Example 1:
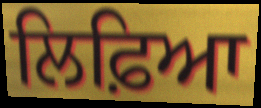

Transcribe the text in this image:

ਲਿਫ਼ਿਆ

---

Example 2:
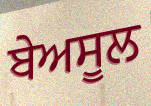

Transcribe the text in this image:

ਬੇਅਸੂਲ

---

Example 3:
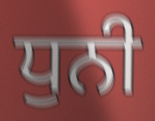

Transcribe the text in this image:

ਧੁਨੀ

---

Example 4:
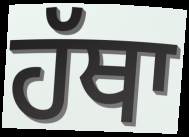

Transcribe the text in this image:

ਹੱਥਾ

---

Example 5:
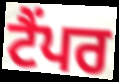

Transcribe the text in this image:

ਟੈਂਪਰ